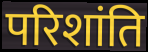
परिशांति